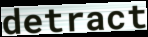
detract